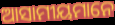
ଆସାମୀୟମାନେ